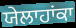
ਯੇਲਾਹਾਂਕਾ